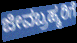
ಜೀವಬ್ರಹ್ಮರಿಗೆ